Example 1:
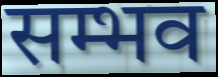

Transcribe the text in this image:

सम्भव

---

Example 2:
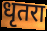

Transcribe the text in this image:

धृतरा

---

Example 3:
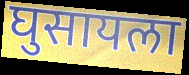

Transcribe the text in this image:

घुसायला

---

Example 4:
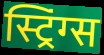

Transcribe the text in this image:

स्ट्रिंग्स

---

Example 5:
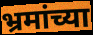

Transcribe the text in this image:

भ्रमांच्या